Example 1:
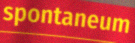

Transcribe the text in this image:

spontaneum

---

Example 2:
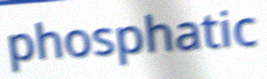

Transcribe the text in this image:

phosphatic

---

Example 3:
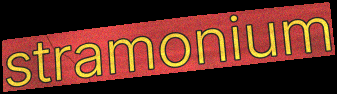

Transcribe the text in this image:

stramonium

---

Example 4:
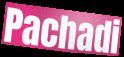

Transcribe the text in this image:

Pachadi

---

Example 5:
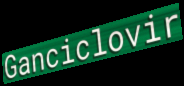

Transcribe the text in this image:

Ganciclovir